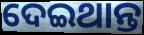
ଦେଇଥାନ୍ତ